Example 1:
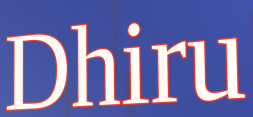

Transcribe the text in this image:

Dhiru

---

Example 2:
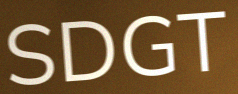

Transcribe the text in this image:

SDGT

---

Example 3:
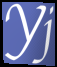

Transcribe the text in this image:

Yj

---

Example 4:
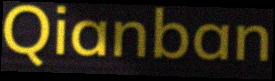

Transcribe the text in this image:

Qianban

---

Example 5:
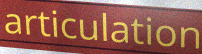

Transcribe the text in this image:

articulation